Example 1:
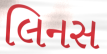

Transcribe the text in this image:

લિનસ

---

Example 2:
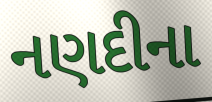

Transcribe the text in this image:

નણદીના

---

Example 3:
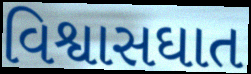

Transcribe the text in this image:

વિશ્વાસઘાત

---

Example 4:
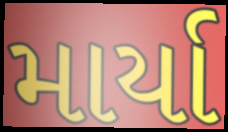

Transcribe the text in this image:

માર્યા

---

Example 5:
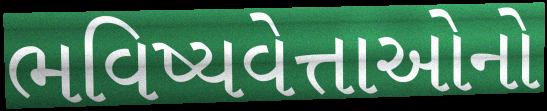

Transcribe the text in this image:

ભવિષ્યવેત્તાઓનો